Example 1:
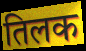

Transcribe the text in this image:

तिलक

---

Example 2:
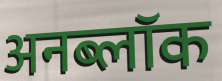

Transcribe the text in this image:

अनब्लॉक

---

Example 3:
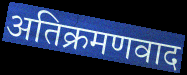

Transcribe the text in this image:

अतिक्रमणवाद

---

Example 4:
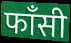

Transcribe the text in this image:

फाँसी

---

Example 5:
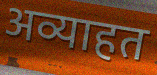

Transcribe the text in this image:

अव्याहत